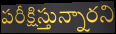
పరీక్షిస్తున్నారని